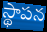
స్థాపన